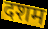
दशम